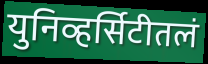
युनिव्हर्सिटीतलं